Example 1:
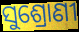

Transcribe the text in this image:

ସୁଶ୍ରୋଣୀ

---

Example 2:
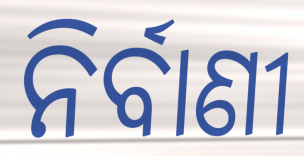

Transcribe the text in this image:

ନିର୍ବାଣୀ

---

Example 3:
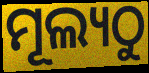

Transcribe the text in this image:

ମୂଲ୍ୟଠୁ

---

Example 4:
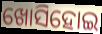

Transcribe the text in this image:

ଖୋସିହୋଇ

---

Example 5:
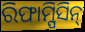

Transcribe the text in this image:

ରିଫାମ୍ପିସିନ୍